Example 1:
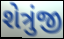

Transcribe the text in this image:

શેત્રુંજી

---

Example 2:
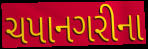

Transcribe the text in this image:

ચપાનગરીના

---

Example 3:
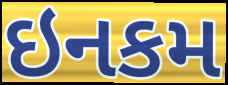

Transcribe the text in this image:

ઇનકમ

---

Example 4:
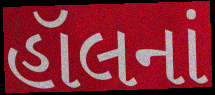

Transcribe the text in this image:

હૉલનાં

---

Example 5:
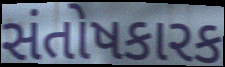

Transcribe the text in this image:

સંતોષકારક